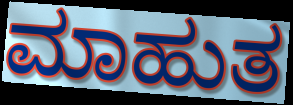
ಮಾಹುತ